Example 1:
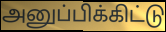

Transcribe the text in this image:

அனுப்பிக்கிட்டு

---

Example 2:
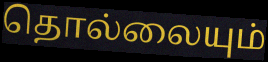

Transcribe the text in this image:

தொல்லையும்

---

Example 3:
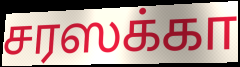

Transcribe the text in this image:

சரஸக்கா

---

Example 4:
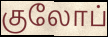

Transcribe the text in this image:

குலோப்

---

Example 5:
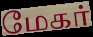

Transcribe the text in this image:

மேகர்